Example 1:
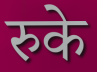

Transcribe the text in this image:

रुके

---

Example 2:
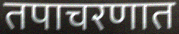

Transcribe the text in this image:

तपाचरणात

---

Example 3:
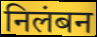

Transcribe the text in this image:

निलंबन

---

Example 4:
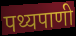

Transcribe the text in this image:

पथ्यपाणी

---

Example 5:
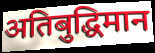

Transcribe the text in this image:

अतिबुद्धिमान